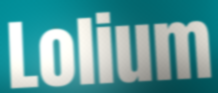
Lolium